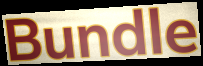
Bundle